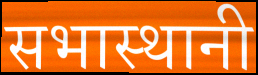
सभास्थानी